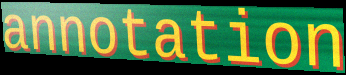
annotation